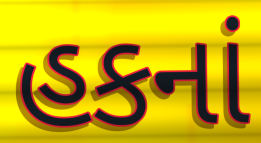
હકનાં